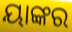
ୟାଙ୍କର